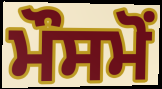
ਮੌਸਮੋਂ